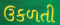
ઉકળતી